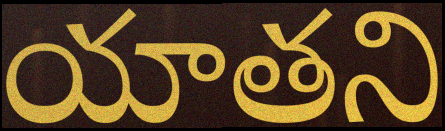
యాతని